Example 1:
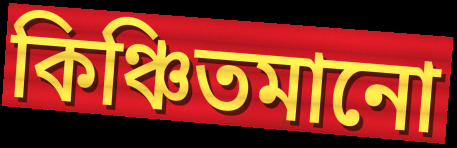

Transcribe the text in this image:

কিঞ্চিতমানো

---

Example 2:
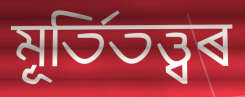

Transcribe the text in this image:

মূৰ্তিতত্ত্বৰ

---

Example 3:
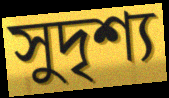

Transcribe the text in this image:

সুদৃশ্য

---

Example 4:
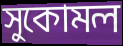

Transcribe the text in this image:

সুকোমল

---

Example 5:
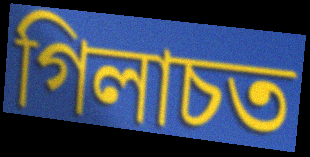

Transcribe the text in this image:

গিলাচত